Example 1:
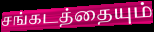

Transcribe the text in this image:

சங்கடத்தையும்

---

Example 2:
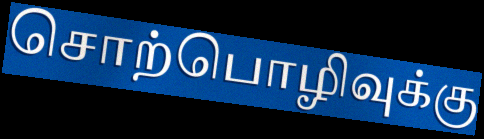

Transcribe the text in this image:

சொற்பொழிவுக்கு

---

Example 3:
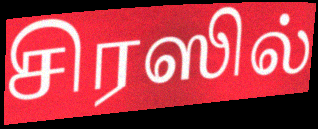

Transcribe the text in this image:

சிரஸில்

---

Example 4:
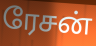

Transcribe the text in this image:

ரேசன்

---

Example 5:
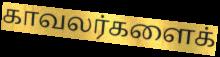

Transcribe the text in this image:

காவலர்களைக்